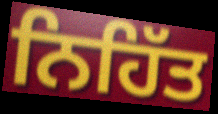
ਨਿਹਿੱਤ